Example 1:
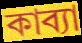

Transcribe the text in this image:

কাব্যা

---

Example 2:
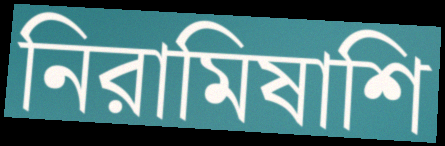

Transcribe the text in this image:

নিরামিষাশি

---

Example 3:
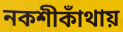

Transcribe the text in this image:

নকশীকাঁথায়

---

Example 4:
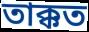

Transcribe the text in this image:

তাক্কত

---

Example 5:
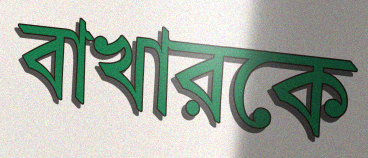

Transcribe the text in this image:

বাখারকে